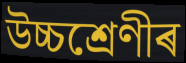
উচ্চশ্ৰেণীৰ